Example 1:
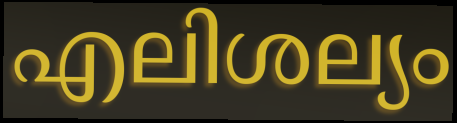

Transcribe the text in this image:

എലിശല്യം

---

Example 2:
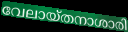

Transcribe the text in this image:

വേലായ്തനാശാരി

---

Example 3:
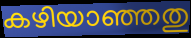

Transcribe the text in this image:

കഴിയാഞ്ഞതു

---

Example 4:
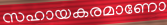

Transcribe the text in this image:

സഹായകരമാണോ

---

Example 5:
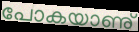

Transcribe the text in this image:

പോകയാണു്